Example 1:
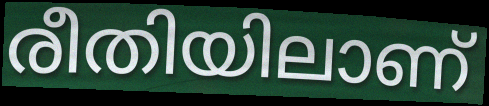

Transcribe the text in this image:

രീതിയിലാണ്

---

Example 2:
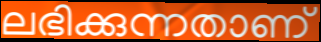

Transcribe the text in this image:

ലഭിക്കുന്നതാണ്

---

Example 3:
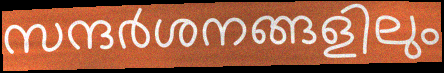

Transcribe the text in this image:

സന്ദർശനങ്ങളിലും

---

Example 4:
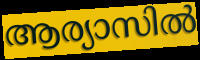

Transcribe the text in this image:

ആര്യാസിൽ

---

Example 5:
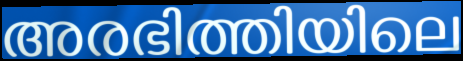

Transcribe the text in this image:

അരഭിത്തിയിലെ